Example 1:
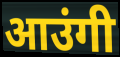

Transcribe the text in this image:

आउंगी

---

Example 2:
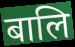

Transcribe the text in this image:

बालि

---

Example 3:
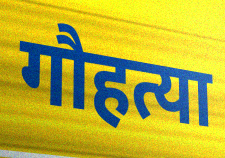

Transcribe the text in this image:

गौहत्या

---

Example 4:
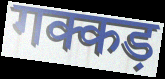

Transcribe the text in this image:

गक्कड़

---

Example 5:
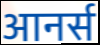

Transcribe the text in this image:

आनर्स